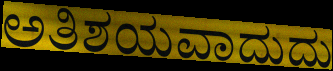
ಅತಿಶಯವಾದುದು